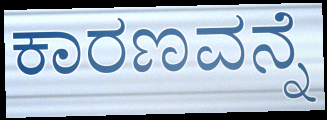
ಕಾರಣವನ್ನೆ